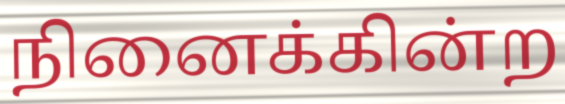
நினைக்கின்ற